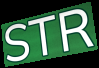
STR